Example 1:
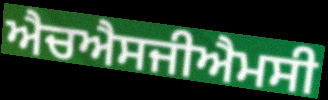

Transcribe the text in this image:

ਐਚਐਸਜੀਐਮਸੀ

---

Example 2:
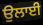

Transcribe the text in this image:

ਉਲਾਈ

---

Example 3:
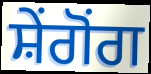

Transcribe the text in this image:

ਸ਼ੇਂਗੋਂਗ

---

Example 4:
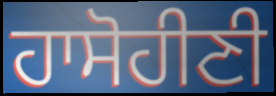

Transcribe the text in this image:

ਹਾਸੋਹੀਣੀ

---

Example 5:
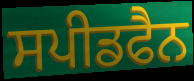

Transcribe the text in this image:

ਸਪੀਡਫੈਨ